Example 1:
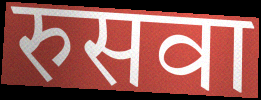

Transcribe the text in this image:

रुसवा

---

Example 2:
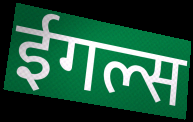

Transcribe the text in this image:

ईगल्स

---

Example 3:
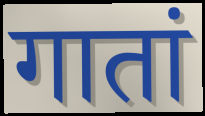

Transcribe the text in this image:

गातां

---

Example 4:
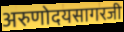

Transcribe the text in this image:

अरुणोदयसागरजी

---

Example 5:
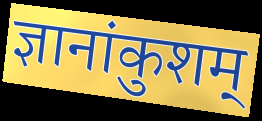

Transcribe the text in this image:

ज्ञानांकुशम्